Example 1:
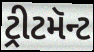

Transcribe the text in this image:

ટ્રીટમૅન્ટ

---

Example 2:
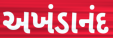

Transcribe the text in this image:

અખંડાનંદ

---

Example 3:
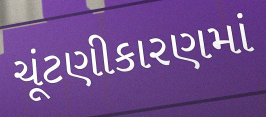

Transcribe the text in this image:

ચૂંટણીકારણમાં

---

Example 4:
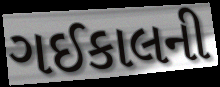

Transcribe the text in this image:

ગઈકાલની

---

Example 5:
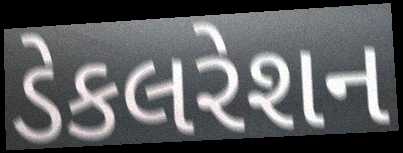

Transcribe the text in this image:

ડેકલરેશન